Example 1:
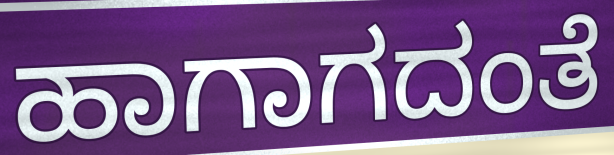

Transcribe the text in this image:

ಹಾಗಾಗದಂತೆ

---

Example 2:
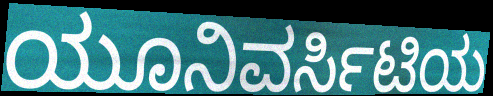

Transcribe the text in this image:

ಯೂನಿವರ್ಸಿಟಿಯ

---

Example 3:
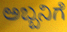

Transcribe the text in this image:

ಅಬ್ಬನಿಗೆ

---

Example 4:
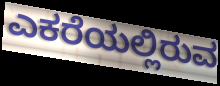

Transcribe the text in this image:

ಎಕರೆಯಲ್ಲಿರುವ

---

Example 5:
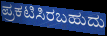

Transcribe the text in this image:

ಪ್ರಕಟಿಸಿರಬಹುದು